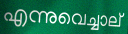
എന്നുവെച്ചാല്